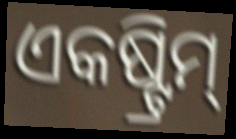
ଏକଷ୍ଟ୍ରିମ୍